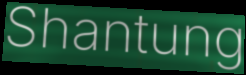
Shantung